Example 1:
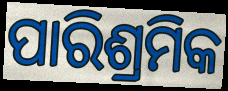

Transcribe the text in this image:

ପାରିଶ୍ରମିକ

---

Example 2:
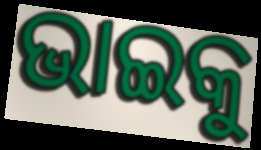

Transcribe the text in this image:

ଭାଇକୁ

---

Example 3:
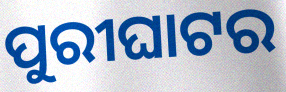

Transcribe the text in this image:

ପୁରୀଘାଟର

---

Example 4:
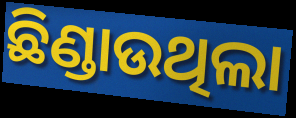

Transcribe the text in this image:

ଛିଣ୍ଡାଉଥିଲା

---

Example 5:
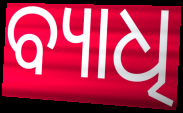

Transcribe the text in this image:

ବ୍ୟାଧି